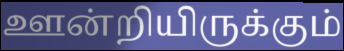
ஊன்றியிருக்கும்